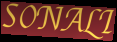
SONALI